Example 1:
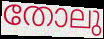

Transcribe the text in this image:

തോലു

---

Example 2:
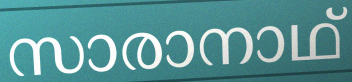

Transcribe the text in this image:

സാരാനാഥ്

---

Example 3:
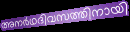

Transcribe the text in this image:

അനർഥദിവസത്തിനായി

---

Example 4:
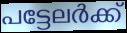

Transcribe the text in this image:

പട്ടേലർക്ക്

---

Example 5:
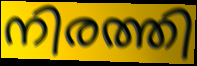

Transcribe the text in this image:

നിരത്തി